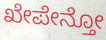
ಖೇಪೇನ್ತೋ